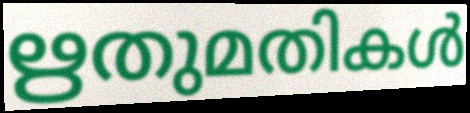
ഋതുമതികൾ